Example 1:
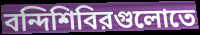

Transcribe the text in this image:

বন্দিশিবিরগুলোতে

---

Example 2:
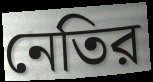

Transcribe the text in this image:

নেতির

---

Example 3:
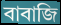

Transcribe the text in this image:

বাবাজি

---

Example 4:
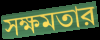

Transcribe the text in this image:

সক্ষমতার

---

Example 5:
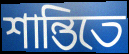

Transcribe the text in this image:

শান্তিতে